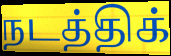
நடத்திக்